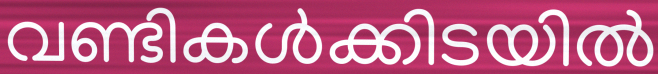
വണ്ടികൾക്കിടയിൽ